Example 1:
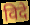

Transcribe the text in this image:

विदे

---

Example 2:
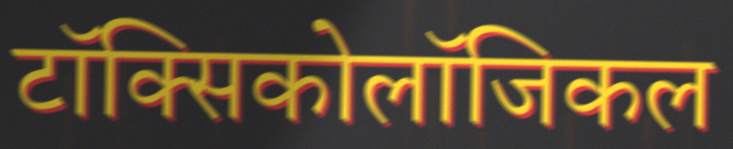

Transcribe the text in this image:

टॉक्सिकोलॉजिकल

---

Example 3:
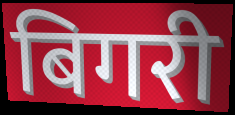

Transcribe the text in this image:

बिगरी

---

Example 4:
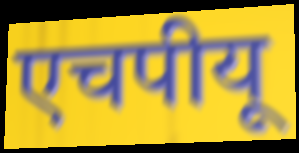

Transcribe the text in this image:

एचपीयू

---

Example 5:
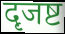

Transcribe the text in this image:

दृजष्ट